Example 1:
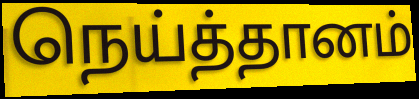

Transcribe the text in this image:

நெய்த்தானம்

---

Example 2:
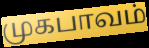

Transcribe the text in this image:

முகபாவம்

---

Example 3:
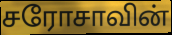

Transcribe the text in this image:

சரோசாவின்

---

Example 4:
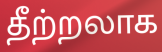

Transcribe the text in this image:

தீற்றலாக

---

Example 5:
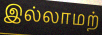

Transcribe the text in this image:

இல்லாமற்